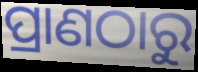
ପ୍ରାଣଠାରୁ